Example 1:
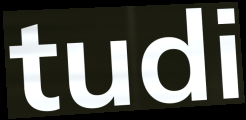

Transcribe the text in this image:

tudi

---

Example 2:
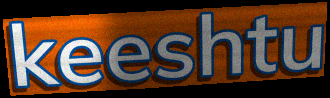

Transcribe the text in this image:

keeshtu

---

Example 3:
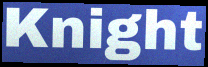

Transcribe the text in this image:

Knight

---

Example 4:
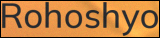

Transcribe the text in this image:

Rohoshyo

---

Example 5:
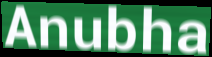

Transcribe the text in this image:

Anubha